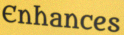
Enhances